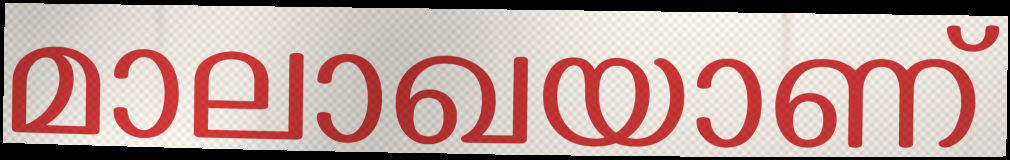
മാലാഖയാണ്